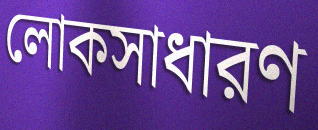
লোকসাধারণ